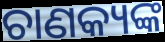
ଚାଣକ୍ୟଙ୍କ